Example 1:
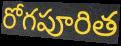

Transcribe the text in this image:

రోగపూరిత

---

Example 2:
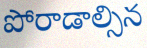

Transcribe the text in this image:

పోరాడాల్సిన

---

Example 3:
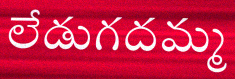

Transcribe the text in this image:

లేడుగదమ్మ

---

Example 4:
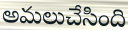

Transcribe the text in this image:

అమలుచేసింది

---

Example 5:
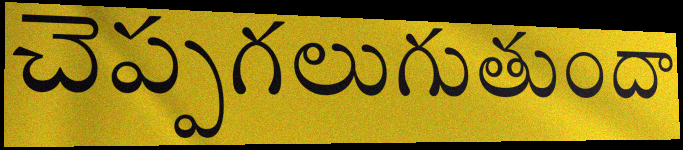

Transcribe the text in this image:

చెప్పగలుగుతుందా